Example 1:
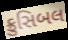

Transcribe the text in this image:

ક્રુસિબલ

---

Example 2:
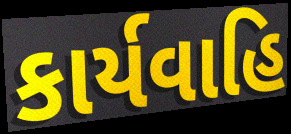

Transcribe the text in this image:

કાર્યવાહિ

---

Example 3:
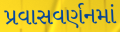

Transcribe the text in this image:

પ્રવાસવર્ણનમાં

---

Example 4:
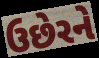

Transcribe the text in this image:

ઉછેરને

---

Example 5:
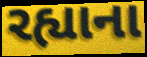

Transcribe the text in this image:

રહ્યાના